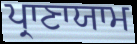
ਪ੍ਰਾਣਾਯਾਮ